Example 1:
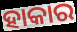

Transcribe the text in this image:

ହାକାର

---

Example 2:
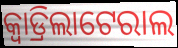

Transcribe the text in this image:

କ୍ୱାଡ୍ରିଲାଟେରାଲ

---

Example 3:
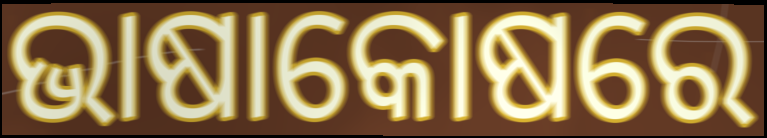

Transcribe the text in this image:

ଭାଷାକୋଷରେ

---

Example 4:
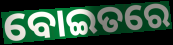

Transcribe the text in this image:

ବୋଇତରେ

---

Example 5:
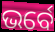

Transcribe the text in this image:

ଭର୍ବେ